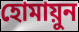
হোমায়ুন